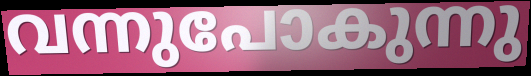
വന്നുപോകുന്നു